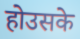
होउसके